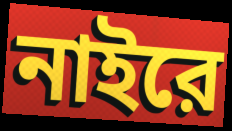
নাইরে